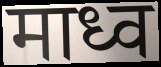
माध्व